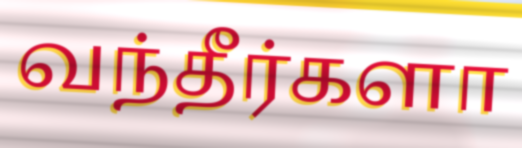
வந்தீர்களா